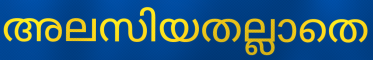
അലസിയതല്ലാതെ